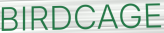
BIRDCAGE